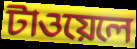
টাওয়েলে